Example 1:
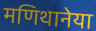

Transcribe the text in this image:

मणिथानेया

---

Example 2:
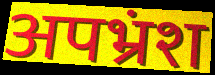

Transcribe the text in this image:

अपभ्रंश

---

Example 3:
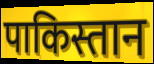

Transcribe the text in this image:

पाकिस्‍तान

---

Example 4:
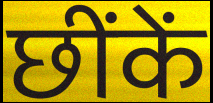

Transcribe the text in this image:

छींकें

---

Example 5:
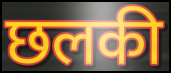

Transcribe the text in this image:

छलकी